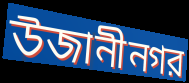
উজানীনগর